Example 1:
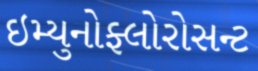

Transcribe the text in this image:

ઇમ્યુનોફ્લોરોસન્ટ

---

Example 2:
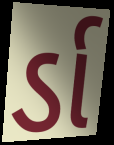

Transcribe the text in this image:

ર્ડા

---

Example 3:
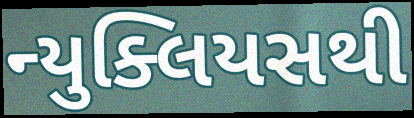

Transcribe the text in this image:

ન્યુક્લિયસથી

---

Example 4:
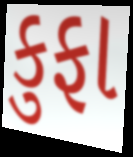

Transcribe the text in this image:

કુફા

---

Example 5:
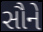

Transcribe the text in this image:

સૌને